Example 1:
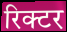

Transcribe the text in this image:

रिक्टर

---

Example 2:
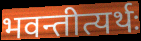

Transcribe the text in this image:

भवन्तीत्यर्थः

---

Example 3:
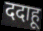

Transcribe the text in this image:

ददाहू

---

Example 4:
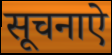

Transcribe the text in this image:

सूचनाऐ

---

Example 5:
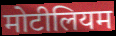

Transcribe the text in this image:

मोटीलियम